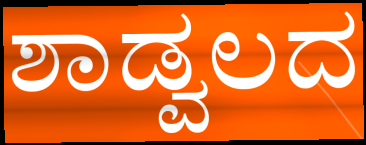
ಶಾಡ್ವಲದ